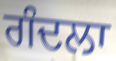
ਗੰਦਲਾ